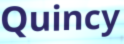
Quincy